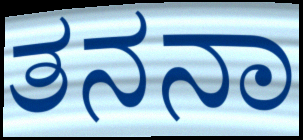
ತನನಾ